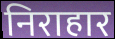
निराहार